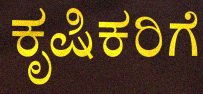
ಕೃಷಿಕರಿಗೆ